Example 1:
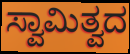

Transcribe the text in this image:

ಸ್ವಾಮಿತ್ವದ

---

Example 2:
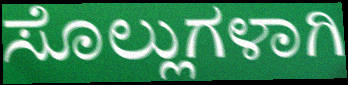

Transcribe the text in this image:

ಸೊಲ್ಲುಗಳಾಗಿ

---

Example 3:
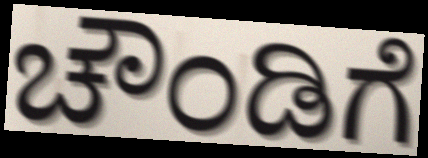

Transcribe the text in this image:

ಚೌಂಡಿಗೆ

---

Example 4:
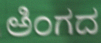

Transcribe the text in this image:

ಅಿಂಗದ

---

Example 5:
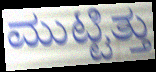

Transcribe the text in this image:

ಮುಟ್ಟಿತ್ತು